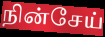
நின்சேய்